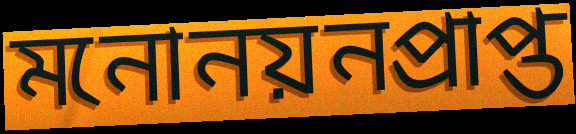
মনোনয়নপ্রাপ্ত